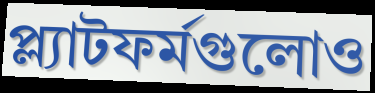
প্ল্যাটফর্মগুলোও